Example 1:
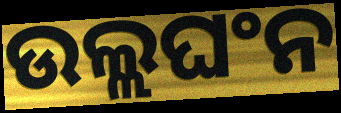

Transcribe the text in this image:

ଉଲ୍ଲଘଂନ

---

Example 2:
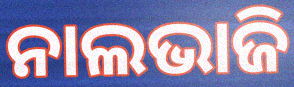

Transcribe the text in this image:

ନାଲଭାଜି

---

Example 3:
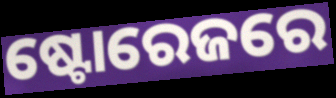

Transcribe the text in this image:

ଷ୍ଟୋରେଜରେ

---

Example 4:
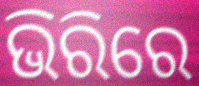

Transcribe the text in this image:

ଭିରିରେ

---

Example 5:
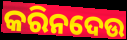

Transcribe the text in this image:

କରିନଦେଉ